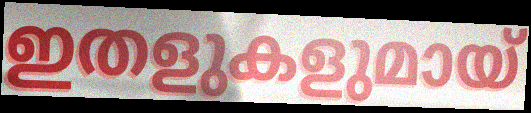
ഇതളുകളുമായ്